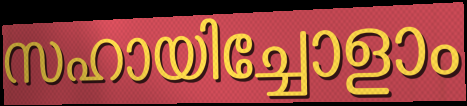
സഹായിച്ചോളാം